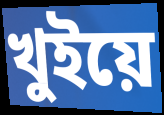
খুইয়ে